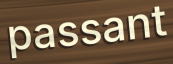
passant